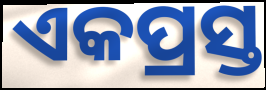
ଏକପ୍ରସ୍ତ